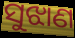
ସୁଝାଣ